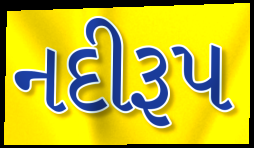
નદીરૂપ